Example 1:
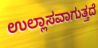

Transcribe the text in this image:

ಉಲ್ಲಾಸವಾಗುತ್ತದೆ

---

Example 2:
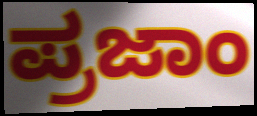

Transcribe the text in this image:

ಪ್ರಜಾಂ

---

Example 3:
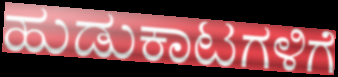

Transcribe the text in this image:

ಹುಡುಕಾಟಗಳಿಗೆ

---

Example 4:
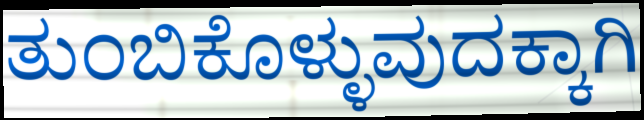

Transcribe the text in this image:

ತುಂಬಿಕೊಳ್ಳುವುದಕ್ಕಾಗಿ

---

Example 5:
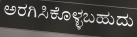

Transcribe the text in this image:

ಅರಗಿಸಿಕೊಳ್ಳಬಹುದು